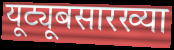
यूट्यूबसारख्या